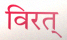
विरत्